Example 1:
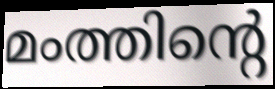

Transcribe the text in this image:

മംത്തിന്റെ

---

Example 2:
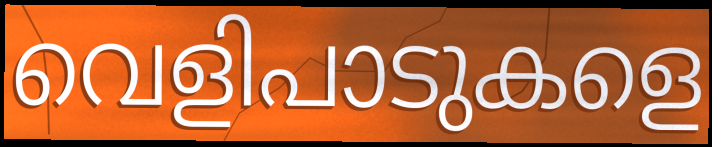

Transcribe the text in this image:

വെളിപാടുകളെ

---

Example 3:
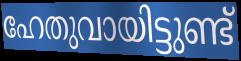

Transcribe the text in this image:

ഹേതുവായിട്ടുണ്ട്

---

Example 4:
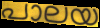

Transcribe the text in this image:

പാലയ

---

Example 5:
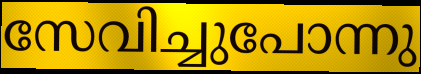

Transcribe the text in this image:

സേവിച്ചുപോന്നു